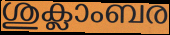
ശുക്ലാംബര